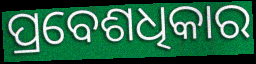
ପ୍ରବେଶଧିକାର